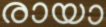
രായാ